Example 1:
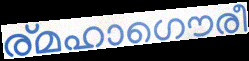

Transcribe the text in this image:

ര്മഹാഗൌരീ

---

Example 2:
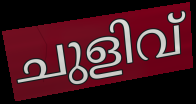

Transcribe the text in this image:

ചുളിവ്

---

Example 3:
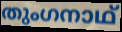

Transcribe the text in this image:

തുംഗനാഥ്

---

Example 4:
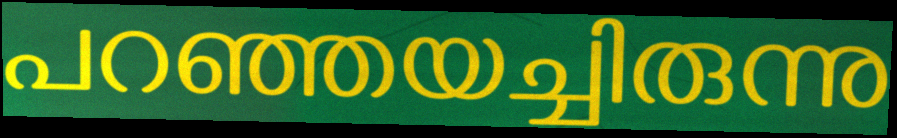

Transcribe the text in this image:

പറഞ്ഞയച്ചിരുന്നു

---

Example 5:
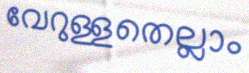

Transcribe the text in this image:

വേറുള്ളതെല്ലാം